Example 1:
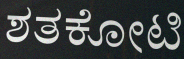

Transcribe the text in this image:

ಶತಕೋಟಿ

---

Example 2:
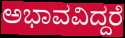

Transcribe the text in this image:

ಅಭಾವವಿದ್ದರೆ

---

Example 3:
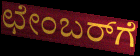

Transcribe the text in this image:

ಛೇಂಬರ್‌ಗೆ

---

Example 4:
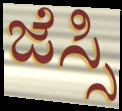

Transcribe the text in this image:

ಜೆಸ್ಸಿ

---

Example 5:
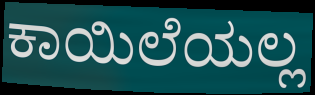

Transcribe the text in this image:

ಕಾಯಿಲೆಯಲ್ಲ